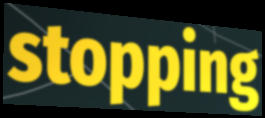
stopping